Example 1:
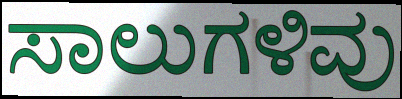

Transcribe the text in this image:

ಸಾಲುಗಳಿವು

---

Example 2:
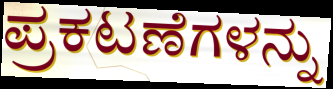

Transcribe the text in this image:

ಪ್ರಕಟಣೆಗಳನ್ನು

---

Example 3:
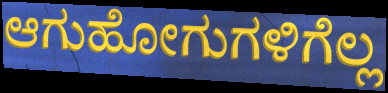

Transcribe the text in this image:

ಆಗುಹೋಗುಗಳಿಗೆಲ್ಲ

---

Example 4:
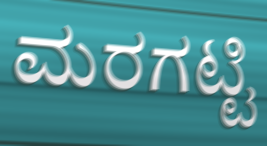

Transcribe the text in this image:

ಮರಗಟ್ಟಿ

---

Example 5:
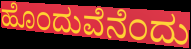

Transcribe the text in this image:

ಹೊಂದುವೆನೆಂದು